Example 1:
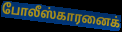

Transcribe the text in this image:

போலீஸ்காரனைக்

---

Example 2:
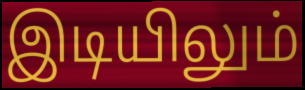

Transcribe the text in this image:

இடியிலும்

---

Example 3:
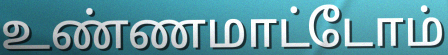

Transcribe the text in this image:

உண்ணமாட்டோம்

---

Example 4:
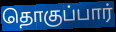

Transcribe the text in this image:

தொகுப்பார்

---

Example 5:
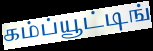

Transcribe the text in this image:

கம்ப்யூட்டிங்